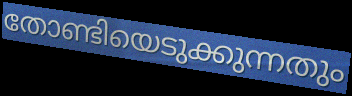
തോണ്ടിയെടുക്കുന്നതും